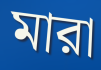
মারা